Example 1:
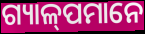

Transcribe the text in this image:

ଗ୍ୟାଳ୍‍ପମାନେ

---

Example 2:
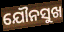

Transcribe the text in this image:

ଯୌନସୁଖ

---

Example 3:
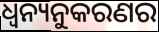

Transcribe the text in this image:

ଧ୍ବନ୍ୟନୁକରଣର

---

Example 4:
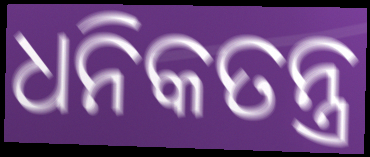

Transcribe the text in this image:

ଧନିକତନ୍ତ୍ର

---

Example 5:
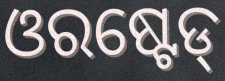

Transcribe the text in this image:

ଓରଷ୍ଟେଡ୍